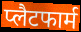
प्लैटफार्म